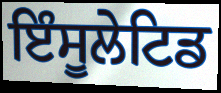
ਇੰਸੂਲੇਟਿਡ